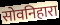
सोवनिहारा